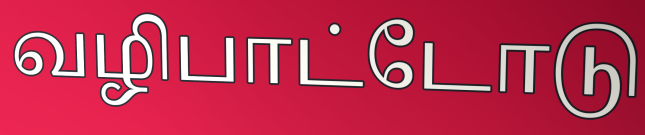
வழிபாட்டோடு